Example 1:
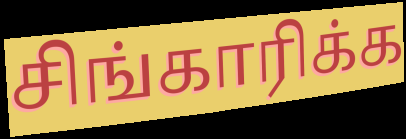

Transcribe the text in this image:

சிங்காரிக்க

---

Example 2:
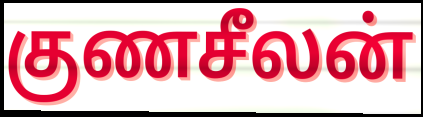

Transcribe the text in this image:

குணசீலன்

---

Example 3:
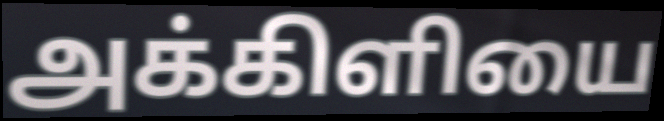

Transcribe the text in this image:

அக்கிளியை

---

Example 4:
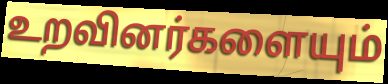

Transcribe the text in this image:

உறவினர்களையும்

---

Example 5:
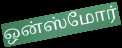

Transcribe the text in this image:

ஒன்ஸ்மோர்